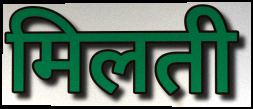
मिलती